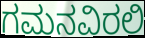
ಗಮನವಿರಲಿ